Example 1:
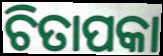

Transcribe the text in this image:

ଚିତାପକା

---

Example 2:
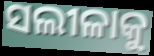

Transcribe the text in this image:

ସଲୀଳାକୁ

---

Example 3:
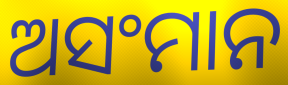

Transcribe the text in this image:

ଅସଂମାନ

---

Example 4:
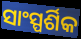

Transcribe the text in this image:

ସାଂସ୍ପର୍ଶିକ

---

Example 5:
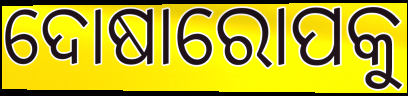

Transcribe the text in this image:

ଦୋଷାରୋପକୁ